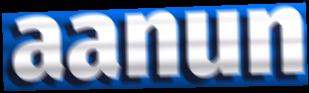
aanun